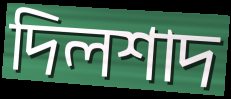
দিলশাদ